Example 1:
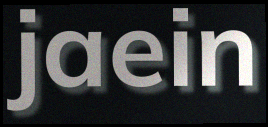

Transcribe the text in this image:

jaein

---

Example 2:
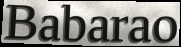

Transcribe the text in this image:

Babarao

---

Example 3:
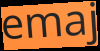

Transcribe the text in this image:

emaj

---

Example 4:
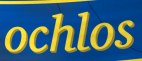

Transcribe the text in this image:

ochlos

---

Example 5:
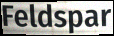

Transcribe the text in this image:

Feldspar